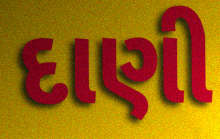
દાણી